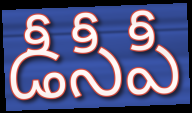
డీసీపీ